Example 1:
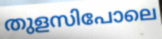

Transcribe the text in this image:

തുളസിപോലെ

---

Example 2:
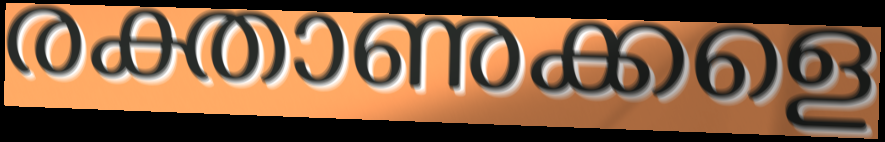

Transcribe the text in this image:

രക്താണുക്കളെ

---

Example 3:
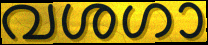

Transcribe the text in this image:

വശഗാ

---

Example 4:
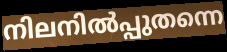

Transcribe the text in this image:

നിലനിൽപ്പുതന്നെ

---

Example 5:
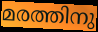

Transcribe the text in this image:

മരത്തിനു